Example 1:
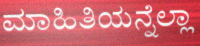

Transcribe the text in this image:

ಮಾಹಿತಿಯನ್ನೆಲ್ಲಾ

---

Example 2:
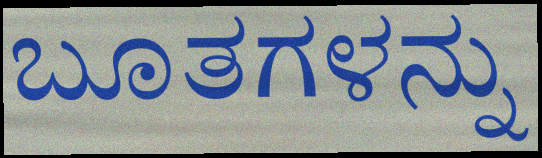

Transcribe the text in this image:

ಬೂತಗಳನ್ನು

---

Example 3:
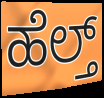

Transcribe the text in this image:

ಹೆಲ್ತ್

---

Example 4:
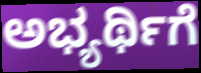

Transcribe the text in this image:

ಅಭ್ಯರ್ಥಿಗೆ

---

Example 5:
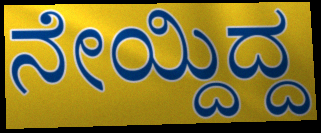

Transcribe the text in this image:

ನೇಯ್ದಿದ್ದ